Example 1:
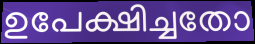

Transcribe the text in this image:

ഉപേക്ഷിച്ചതോ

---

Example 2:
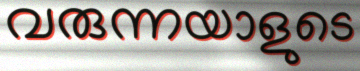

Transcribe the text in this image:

വരുന്നയാളുടെ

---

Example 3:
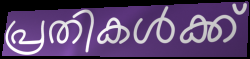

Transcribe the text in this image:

പ്രതികൾക്ക്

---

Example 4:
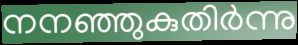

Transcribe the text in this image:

നനഞ്ഞുകുതിർന്നു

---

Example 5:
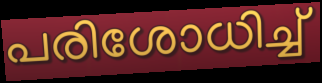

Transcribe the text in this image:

പരിശോധിച്ച്